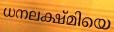
ധനലക്ഷ്മിയെ